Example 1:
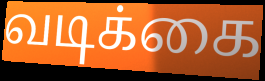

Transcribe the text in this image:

வடிக்கை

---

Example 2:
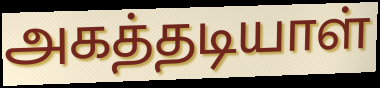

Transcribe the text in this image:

அகத்தடியாள்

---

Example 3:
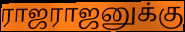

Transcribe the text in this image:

ராஜராஜனுக்கு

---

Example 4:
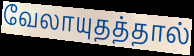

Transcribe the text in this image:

வேலாயுதத்தால்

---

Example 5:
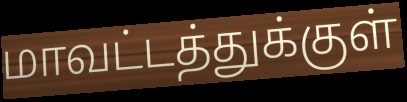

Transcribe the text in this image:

மாவட்டத்துக்குள்